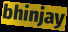
bhinjay